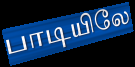
பாடியிலே